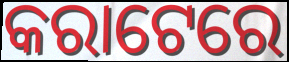
କରାଟେରେ